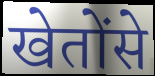
खेतोंसे